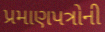
પ્રમાણપત્રોની